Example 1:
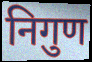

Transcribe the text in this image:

निगुण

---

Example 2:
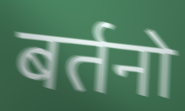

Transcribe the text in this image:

बर्तनो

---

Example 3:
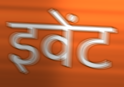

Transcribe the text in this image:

इवेंट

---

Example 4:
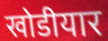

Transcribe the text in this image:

खोडीयार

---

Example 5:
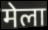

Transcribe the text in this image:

मेला